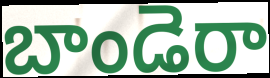
బాండెరా